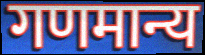
गणमान्‍य